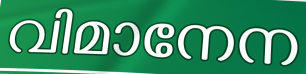
വിമാനേന